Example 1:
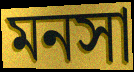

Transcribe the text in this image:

মনসা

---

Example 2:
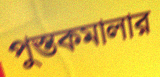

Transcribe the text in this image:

পুস্তকমালার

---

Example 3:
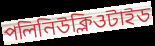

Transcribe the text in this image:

পলিনিউক্লিওটাইড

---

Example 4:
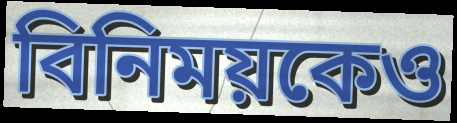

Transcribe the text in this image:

বিনিময়কেও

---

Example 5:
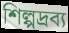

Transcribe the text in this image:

শিল্পদ্রব্য